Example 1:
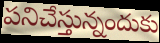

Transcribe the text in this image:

పనిచేస్తున్నందుకు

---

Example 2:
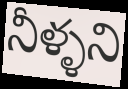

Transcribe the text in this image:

నీళ్ళని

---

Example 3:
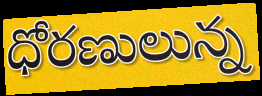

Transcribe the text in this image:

ధోరణులున్న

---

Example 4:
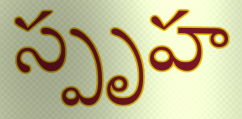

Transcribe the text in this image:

స్పృహ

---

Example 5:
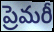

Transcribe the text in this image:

ప్రెమరీ